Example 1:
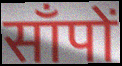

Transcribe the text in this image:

साँपों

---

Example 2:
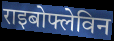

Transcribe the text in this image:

राइबोफ्लेविन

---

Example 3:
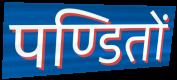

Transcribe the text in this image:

पण्डितों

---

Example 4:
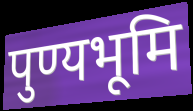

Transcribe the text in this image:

पुण्यभूमि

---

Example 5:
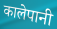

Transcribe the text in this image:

कालेपानी